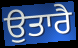
ਉਤਾਰੈ